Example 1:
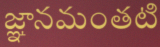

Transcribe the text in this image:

జ్ఞానమంతటి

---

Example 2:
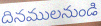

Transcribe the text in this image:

దినములనుండి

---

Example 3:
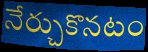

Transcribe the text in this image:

నేర్చుకొనటం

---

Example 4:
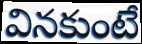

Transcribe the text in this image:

వినకుంటే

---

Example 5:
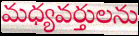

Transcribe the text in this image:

మధ్యవర్తులను